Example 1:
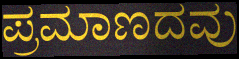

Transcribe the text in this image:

ಪ್ರಮಾಣದವು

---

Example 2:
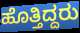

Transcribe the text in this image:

ಹೊತ್ತಿದ್ದರು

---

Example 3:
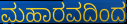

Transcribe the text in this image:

ಮಹಾರವದಿಂದ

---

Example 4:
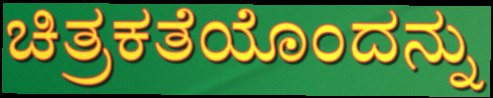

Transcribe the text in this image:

ಚಿತ್ರಕತೆಯೊಂದನ್ನು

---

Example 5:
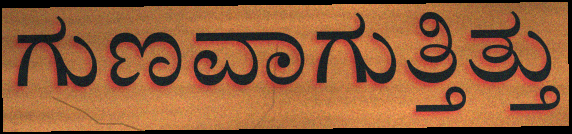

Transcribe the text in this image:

ಗುಣವಾಗುತ್ತಿತ್ತು